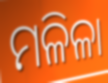
ମଳିଳା